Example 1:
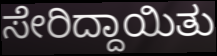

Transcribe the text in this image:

ಸೇರಿದ್ದಾಯಿತು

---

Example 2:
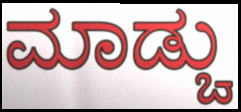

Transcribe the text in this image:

ಮಾಡ್ಚು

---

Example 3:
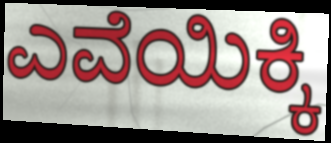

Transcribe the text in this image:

ಎವೆಯಿಕ್ಕಿ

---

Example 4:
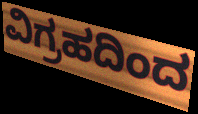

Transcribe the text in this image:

ವಿಗ್ರಹದಿಂದ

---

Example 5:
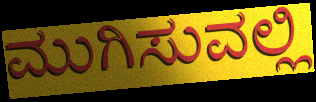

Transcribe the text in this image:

ಮುಗಿಸುವಲ್ಲಿ